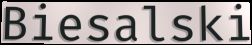
Biesalski